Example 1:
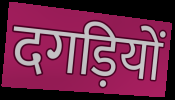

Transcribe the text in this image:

दगड़ियों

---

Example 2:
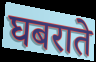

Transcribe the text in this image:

घबराते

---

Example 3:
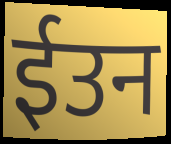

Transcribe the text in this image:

ईउन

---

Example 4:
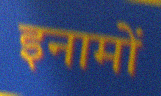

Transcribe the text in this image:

इनामों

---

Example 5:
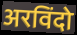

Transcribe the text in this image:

अरविंदो